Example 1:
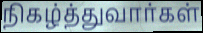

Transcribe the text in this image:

நிகழ்த்துவார்கள்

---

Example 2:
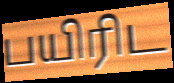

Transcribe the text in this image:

பயிரிட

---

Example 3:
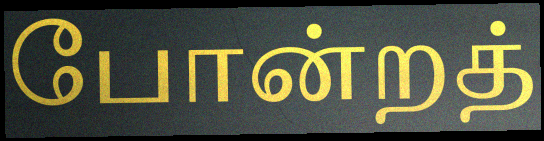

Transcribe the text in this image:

போன்றத்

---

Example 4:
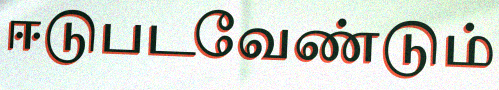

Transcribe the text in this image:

ஈடுபடவேண்டும்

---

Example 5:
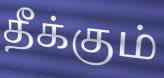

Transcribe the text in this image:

தீக்கும்